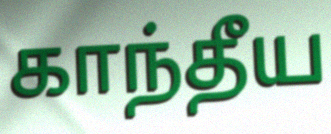
காந்தீய